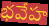
భవేహ